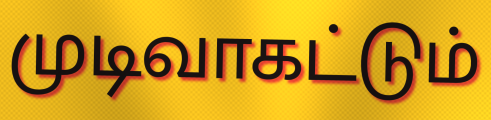
முடிவாகட்டும்